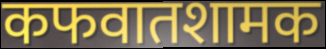
कफवातशामक